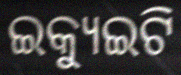
ଇକ୍ୟୁଇଟି